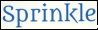
Sprinkle